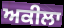
ਅਕੀਲਾ